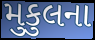
મુકુલના